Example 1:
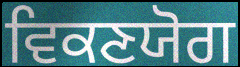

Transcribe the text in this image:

ਵਿਕਣਯੋਗ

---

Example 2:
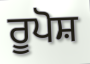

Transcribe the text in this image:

ਰੂਪੋਸ਼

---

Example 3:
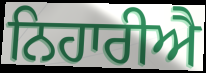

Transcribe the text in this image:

ਨਿਹਾਰੀਐ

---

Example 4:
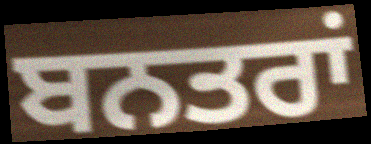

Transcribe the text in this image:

ਬਨਤਰਾਂ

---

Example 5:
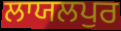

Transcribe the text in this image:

ਲਾਯਲਪੁਰ